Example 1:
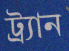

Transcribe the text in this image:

ট্র্যান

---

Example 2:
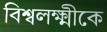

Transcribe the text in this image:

বিশ্বলক্ষ্মীকে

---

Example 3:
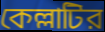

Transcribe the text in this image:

কেল্লাটির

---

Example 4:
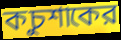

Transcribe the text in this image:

কচুশাকের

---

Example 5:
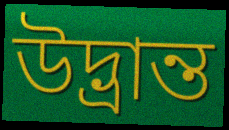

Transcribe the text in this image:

উদ্ভ্রান্ত